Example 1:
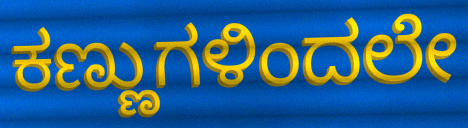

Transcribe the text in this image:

ಕಣ್ಣುಗಳಿಂದಲೇ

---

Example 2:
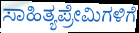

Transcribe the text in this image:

ಸಾಹಿತ್ಯಪ್ರೇಮಿಗಳಿಗೆ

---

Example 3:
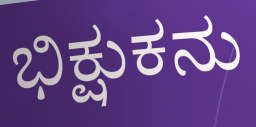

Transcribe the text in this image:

ಭಿಕ್ಷುಕನು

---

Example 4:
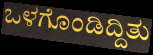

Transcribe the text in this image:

ಒಳಗೊಂಡಿದ್ದಿತು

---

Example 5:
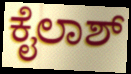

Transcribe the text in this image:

ಕೈಲಾಶ್